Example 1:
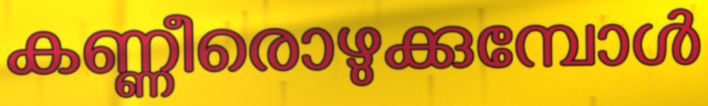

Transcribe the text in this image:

കണ്ണീരൊഴുക്കുമ്പോൾ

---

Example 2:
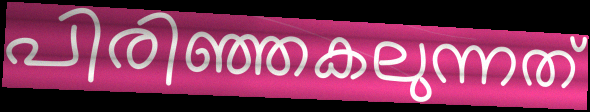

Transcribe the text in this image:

പിരിഞ്ഞകലുന്നത്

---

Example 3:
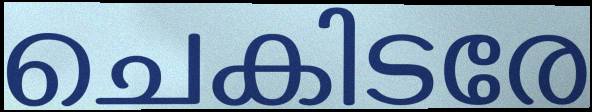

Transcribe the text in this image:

ചെകിടരേ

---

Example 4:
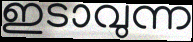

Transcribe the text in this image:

ഇടാവുന്ന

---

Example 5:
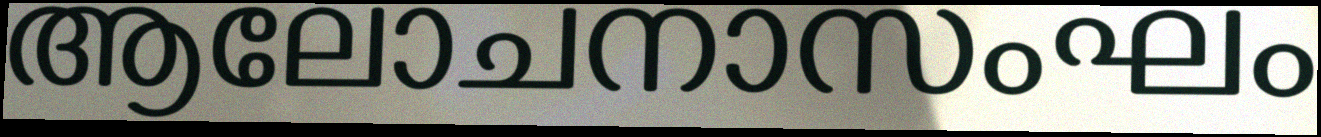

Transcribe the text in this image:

ആലോചനാസംഘം